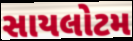
સાયલોટમ